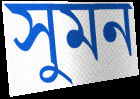
সুমন